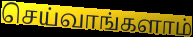
செய்வாங்களாம்